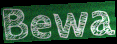
Bewa